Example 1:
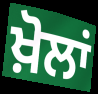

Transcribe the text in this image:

ਖ਼ੋਲਾਂ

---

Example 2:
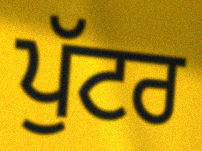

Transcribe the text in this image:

ਪੁੱਟਰ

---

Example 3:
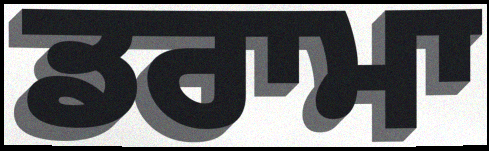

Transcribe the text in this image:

ਡਰਾਮਾ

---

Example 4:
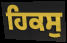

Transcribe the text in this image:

ਹਿਕਸੁ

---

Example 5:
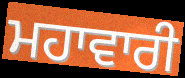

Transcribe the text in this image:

ਮਹਾਵਾਰੀ